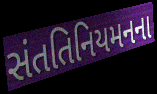
સંતતિનિયમનના